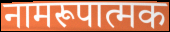
नामरूपात्मक